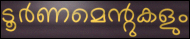
ടൂർണമെന്റുകളും